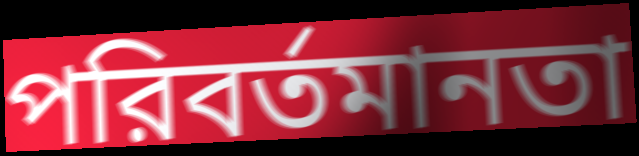
পরিবর্তমানতা